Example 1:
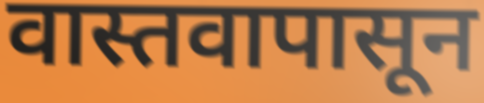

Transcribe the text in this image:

वास्तवापासून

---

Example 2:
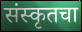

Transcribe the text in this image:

संस्कृतचा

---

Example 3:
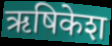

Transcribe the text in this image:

ऋषिकेश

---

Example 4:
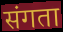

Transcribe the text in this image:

संगता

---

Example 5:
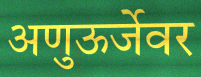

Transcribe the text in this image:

अणुऊर्जेवर